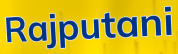
Rajputani